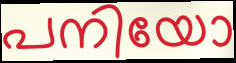
പനിയോ